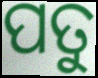
ପତୁ